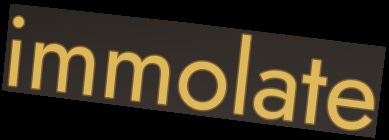
immolate